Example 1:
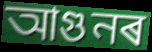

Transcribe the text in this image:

আগুনৰ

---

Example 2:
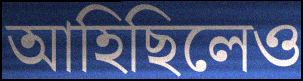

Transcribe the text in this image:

আহিছিলেও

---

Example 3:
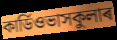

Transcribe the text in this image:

কাৰ্ডিওভাসকুলাৰ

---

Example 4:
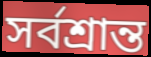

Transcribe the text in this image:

সৰ্বশ্ৰান্ত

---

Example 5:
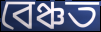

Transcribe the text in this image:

বেঞ্চত